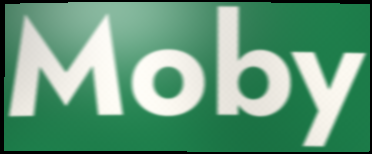
Moby